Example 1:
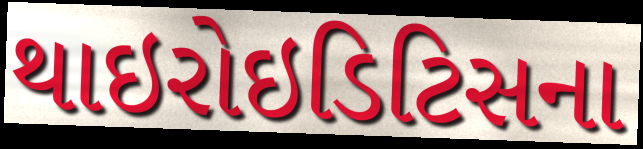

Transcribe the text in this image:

થાઇરોઇડિટિસના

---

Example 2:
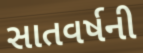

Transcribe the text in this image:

સાતવર્ષની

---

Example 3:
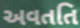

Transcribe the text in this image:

અવતતિ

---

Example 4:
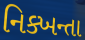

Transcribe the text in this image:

નિક્ખન્તા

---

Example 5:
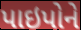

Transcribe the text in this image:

પાઇપોને